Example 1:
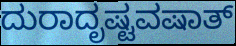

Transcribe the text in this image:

ದುರಾದೃಷ್ಟವಷಾತ್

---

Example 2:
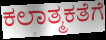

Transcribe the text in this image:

ಕಲಾತ್ಮಕತೆಗೆ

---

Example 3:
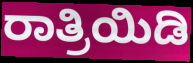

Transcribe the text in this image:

ರಾತ್ರಿಯಿಡಿ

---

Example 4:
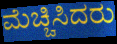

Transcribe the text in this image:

ಮೆಚ್ಚಿಸಿದರು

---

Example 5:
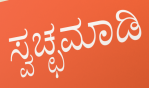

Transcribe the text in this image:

ಸ್ವಚ್ಛಮಾಡಿ